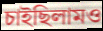
চাইছিলামও